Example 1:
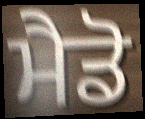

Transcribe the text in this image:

ਮੈਡੋ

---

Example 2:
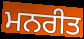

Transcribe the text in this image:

ਮਨਰੀਤ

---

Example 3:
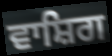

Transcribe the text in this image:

ਵਾਸ਼ਿਗ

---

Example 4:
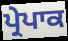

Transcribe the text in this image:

ਪ੍ਰੇਪਾਕ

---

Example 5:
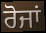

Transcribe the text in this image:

ਰੋਜਾਂ